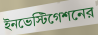
ইনভেস্টিগেশনের